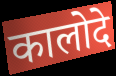
कालोदे